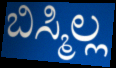
ಬಿಸ್ಮಿಲ್ಲ